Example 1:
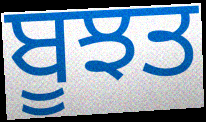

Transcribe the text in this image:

ਬੂਝਤ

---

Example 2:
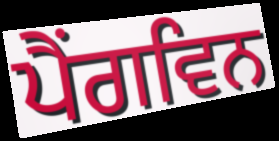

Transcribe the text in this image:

ਪੈਂਗਵਿਨ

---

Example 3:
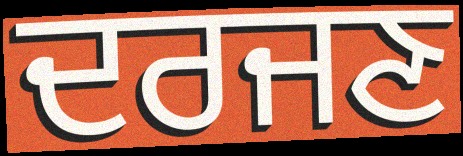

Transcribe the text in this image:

ਦਰਜਣ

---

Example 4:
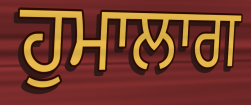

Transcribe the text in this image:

ਹੁਮਾਲਾਗ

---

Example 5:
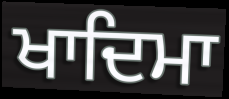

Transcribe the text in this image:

ਖਾਦਿਮਾ